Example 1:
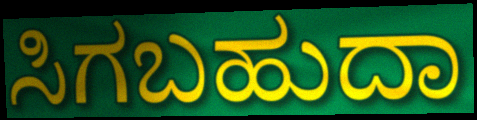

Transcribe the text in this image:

ಸಿಗಬಹುದಾ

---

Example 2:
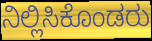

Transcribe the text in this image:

ನಿಲ್ಲಿಸಿಕೊಂಡರು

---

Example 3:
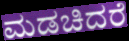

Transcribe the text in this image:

ಮಡಚಿದರೆ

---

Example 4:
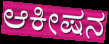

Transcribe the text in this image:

ಆಕೀಷನ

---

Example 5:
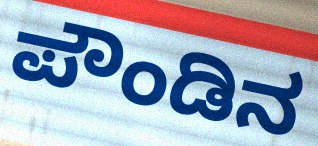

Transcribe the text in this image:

ಪೌಂಡಿನ